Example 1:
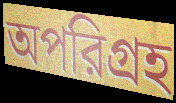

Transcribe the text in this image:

অপরিগ্রহ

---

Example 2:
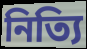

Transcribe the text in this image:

নিত্যি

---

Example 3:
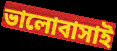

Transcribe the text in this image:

ভালোবাসাই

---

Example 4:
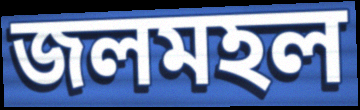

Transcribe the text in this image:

জলমহল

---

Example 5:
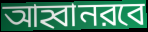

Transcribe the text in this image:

আহ্বানরবে